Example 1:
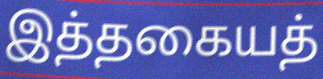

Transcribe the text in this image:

இத்தகையத்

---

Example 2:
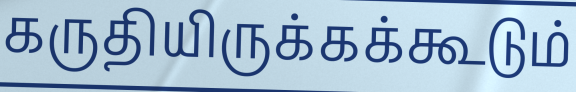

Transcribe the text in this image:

கருதியிருக்கக்கூடும்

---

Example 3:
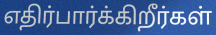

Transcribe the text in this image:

எதிர்பார்க்கிறீர்கள்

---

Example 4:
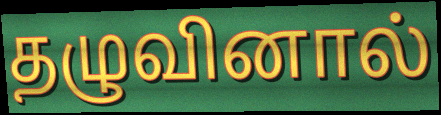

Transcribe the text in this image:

தழுவினால்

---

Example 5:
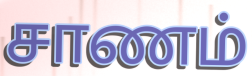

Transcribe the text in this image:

சாணம்